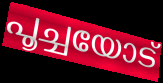
പൂച്ചയോട്